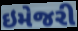
ઇમેજરી